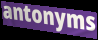
antonyms